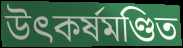
উৎকর্ষমণ্ডিত